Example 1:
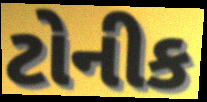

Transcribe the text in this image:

ટોનીક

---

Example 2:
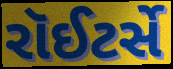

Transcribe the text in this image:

રૉઈટર્સે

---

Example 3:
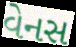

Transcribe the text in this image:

વેનસ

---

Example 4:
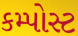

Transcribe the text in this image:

કમ્પોસ્ટ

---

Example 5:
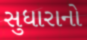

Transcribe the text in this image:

સુધારાનો